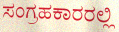
ಸಂಗ್ರಹಕಾರರಲ್ಲಿ